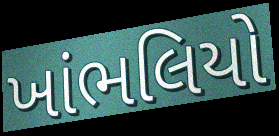
ખાંભલિયો